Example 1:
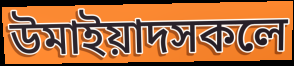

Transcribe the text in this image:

উমাইয়াদসকলে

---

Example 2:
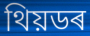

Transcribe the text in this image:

থিয়ডৰ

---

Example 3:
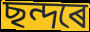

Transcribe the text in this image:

ছন্দৰে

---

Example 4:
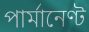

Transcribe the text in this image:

পাৰ্মানেণ্ট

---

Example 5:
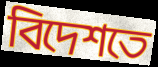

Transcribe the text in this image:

বিদেশতে